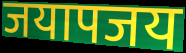
जयापजय